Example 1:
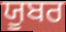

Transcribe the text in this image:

ਯੂਬਰ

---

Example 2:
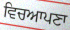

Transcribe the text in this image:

ਵਿਚਆਪਣਾ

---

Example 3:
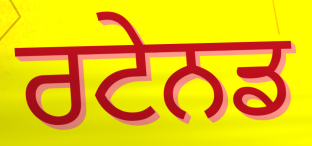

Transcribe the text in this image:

ਰਟੇਨਡ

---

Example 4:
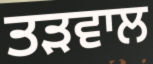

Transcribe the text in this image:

ਤੜਵਾਲ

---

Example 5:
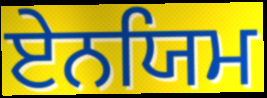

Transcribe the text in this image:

ਏਨਯਿਮ